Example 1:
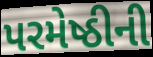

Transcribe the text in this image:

પરમેષ્ઠીની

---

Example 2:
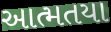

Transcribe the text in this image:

આત્મતયા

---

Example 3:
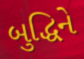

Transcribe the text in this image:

બુદ્ધિને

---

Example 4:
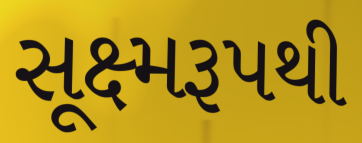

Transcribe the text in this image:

સૂક્ષ્મરૂપથી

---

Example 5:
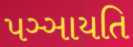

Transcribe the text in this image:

પઞ્ઞાયતિ